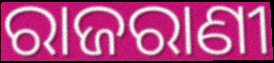
ରାଜରାଣୀ